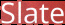
Slate